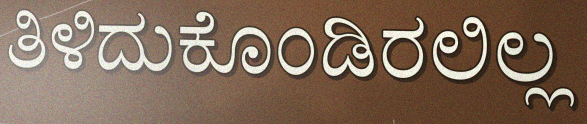
ತಿಳಿದುಕೊಂಡಿರಲಿಲ್ಲ